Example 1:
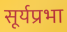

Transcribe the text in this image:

सूर्यप्रभा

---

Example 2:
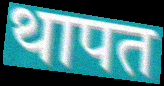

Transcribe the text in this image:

थापत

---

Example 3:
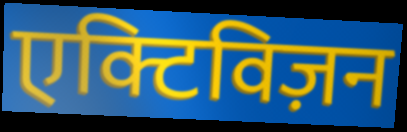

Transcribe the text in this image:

एक्टिविज़न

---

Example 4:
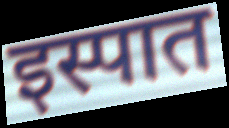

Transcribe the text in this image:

इस्पात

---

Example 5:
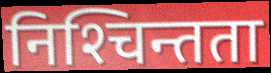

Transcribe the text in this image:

निश्चिन्तता